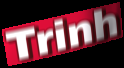
Trinh